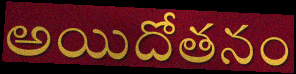
అయిదోతనం